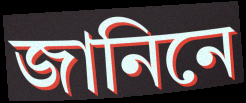
জানিনে